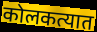
कोलकत्यात